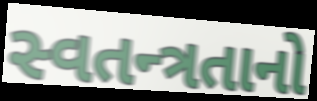
સ્વતન્ત્રતાનો